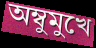
অম্বুমুখে